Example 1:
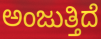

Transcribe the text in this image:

ಅಂಜುತ್ತಿದೆ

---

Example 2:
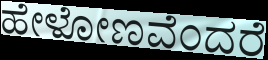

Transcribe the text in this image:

ಹೇಳೋಣವೆಂದರೆ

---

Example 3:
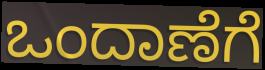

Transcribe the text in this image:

ಒಂದಾಣೆಗೆ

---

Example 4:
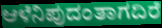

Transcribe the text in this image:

ಆಳೆನಿಪುದಂತಾಗದಿರೆ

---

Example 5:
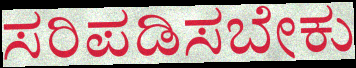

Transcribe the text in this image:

ಸರಿಪಡಿಸಬೇಕು